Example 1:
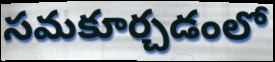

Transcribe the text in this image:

సమకూర్చడంలో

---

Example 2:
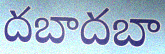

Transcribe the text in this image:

దబాదబా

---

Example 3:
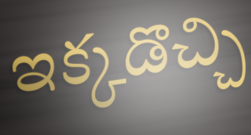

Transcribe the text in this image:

ఇక్కడొచ్చి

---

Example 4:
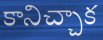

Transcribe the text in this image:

కానిచ్చాక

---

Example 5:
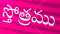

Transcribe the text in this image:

స్తోత్రము